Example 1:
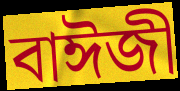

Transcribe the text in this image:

বাঈজী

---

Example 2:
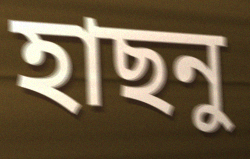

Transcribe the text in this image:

হাছনু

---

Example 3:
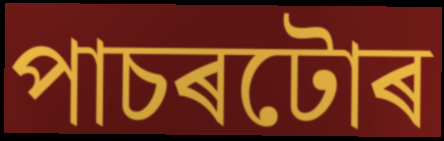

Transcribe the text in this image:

পাচৰটোৰ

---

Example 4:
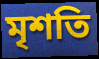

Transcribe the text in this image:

মৃশতি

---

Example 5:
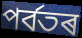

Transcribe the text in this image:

পৰ্বতৰ